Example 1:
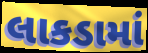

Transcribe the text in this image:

લાકડામાં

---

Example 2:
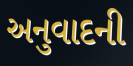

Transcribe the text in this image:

અનુવાદની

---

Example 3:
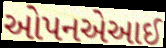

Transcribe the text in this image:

ઓપનએઆઈ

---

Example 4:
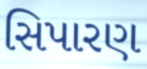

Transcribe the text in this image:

સિપારણ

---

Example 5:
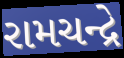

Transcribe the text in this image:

રામચન્દ્રે